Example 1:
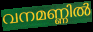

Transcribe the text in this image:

വനമണ്ണിൽ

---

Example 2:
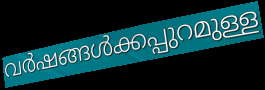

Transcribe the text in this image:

വർഷങ്ങൾക്കപ്പുറമുള്ള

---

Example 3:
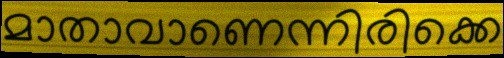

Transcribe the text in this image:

മാതാവാണെന്നിരിക്കെ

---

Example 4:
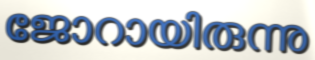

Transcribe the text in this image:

ജോറായിരുന്നു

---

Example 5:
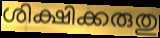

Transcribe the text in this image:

ശിക്ഷിക്കരുതു